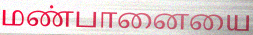
மண்பானையை